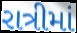
રાત્રીમાં